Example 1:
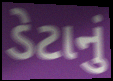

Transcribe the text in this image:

ડેટાનું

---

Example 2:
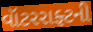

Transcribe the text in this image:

વૉટરરાફ્ટની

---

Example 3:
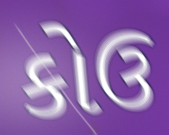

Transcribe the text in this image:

કોઉ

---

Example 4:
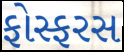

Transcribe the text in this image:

ફોસ્ફરસ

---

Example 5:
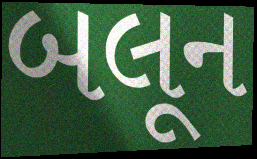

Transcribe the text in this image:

બલૂન